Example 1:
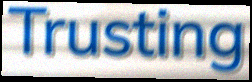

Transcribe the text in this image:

Trusting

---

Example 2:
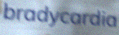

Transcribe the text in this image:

bradycardia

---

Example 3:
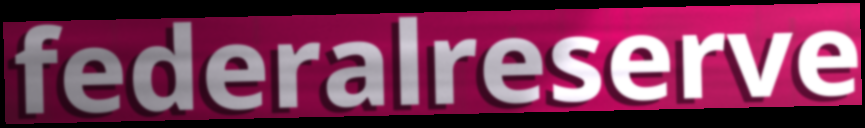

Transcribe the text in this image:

federalreserve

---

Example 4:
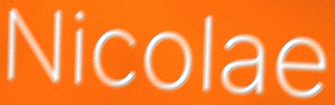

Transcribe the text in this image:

Nicolae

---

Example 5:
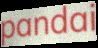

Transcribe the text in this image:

pandai